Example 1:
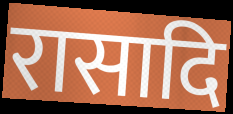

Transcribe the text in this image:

रासादि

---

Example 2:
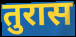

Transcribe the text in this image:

तुरास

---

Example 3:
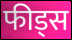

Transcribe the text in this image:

फीड्स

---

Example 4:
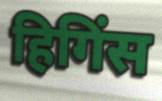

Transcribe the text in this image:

हिगिंस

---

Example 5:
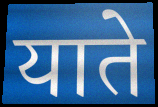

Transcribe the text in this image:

याते